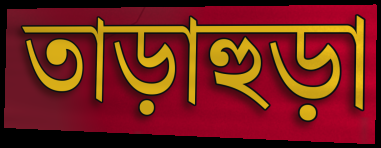
তাড়াহুড়া